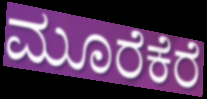
ಮೂರೆಕೆರೆ